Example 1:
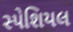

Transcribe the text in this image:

સ્પેશિયલ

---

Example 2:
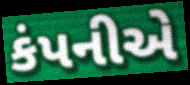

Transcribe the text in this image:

કંપનીએ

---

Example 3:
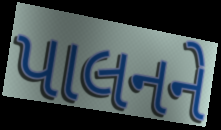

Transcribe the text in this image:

પાલનને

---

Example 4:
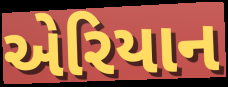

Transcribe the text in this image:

એરિયાન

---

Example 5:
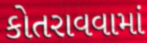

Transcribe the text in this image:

કોતરાવવામાં